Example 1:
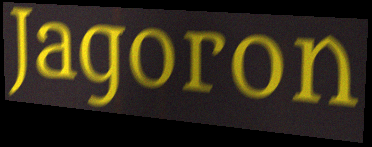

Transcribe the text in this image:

Jagoron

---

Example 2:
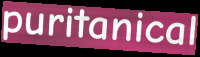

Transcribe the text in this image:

puritanical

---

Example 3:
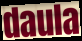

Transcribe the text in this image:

daula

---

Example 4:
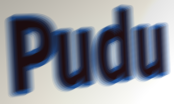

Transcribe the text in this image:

Pudu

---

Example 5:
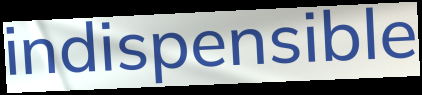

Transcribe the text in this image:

indispensible